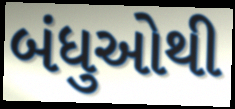
બંધુઓથી